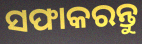
ସଫାକରନ୍ତୁ